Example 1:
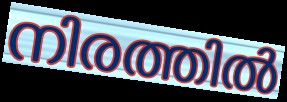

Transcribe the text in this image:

നിരത്തിൽ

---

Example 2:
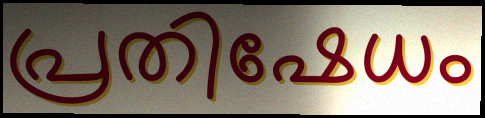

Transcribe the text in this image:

പ്രതിഷേധം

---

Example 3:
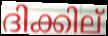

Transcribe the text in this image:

ദിക്കില്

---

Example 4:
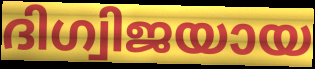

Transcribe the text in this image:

ദിഗ്വിജയായ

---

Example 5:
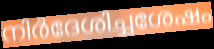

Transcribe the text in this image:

നിർദേശിച്ചശേഷം